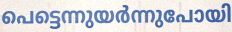
പെട്ടെന്നുയർന്നുപോയി